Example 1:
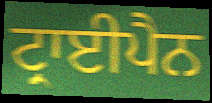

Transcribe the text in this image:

ਟ੍ਰਾਈਪੈਨ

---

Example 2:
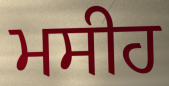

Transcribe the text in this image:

ਮਸੀਹ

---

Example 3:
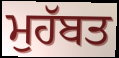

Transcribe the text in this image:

ਮੁਹੱਬਤ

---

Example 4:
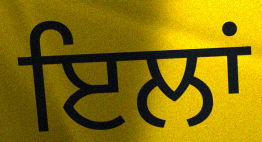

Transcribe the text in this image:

ਇਲਾਂ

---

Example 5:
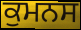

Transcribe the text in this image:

ਕੁਮਨਸ